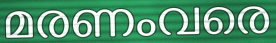
മരണംവരെ